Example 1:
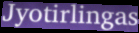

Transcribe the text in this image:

Jyotirlingas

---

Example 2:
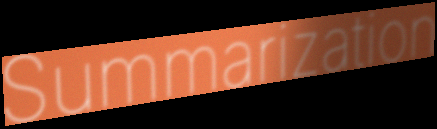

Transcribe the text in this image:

Summarization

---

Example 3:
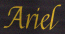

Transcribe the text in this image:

Ariel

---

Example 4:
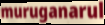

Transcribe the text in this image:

muruganarul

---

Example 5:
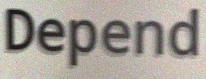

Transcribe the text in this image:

Depend